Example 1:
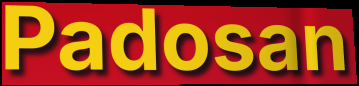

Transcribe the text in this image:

Padosan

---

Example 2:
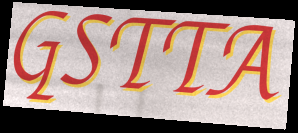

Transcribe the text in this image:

GSTTA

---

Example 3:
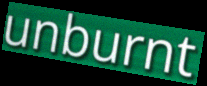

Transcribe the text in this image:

unburnt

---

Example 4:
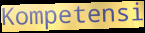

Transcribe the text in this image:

Kompetensi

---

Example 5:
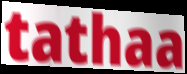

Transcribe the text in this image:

tathaa